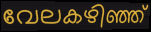
വേലകഴിഞ്ഞ്